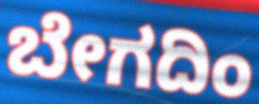
ಬೇಗದಿಂ